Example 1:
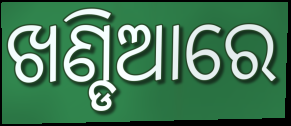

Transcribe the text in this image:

ଖଣ୍ଡିଆରେ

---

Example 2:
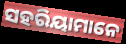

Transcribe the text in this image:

ସହରିୟାମାନେ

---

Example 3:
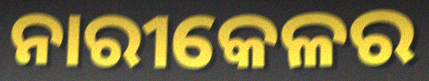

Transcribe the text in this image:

ନାରୀକେଳର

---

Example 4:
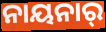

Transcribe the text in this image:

ନାୟନାର୍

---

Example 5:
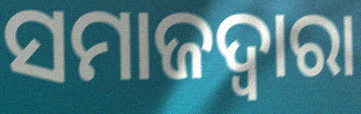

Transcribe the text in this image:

ସମାଜଦ୍ଵାରା